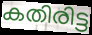
കതിരിട്ട